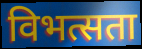
विभत्सता